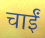
चाईं